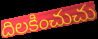
దిలకించుచు